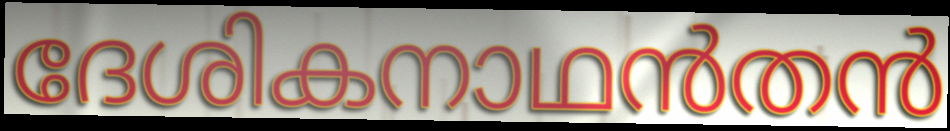
ദേശികനാഥൻതൻ